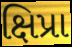
ક્ષિપ્રા